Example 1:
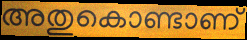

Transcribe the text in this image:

അതുകൊണ്ടാണ്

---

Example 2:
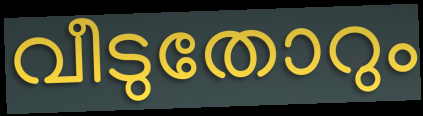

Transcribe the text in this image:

വീടുതോറും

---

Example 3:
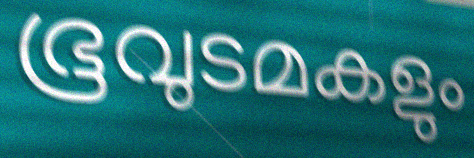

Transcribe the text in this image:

ഭൂവുടമകളും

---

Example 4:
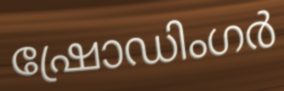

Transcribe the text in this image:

ഷ്രോഡിംഗർ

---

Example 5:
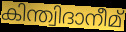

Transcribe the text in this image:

കിന്ത്വിദാനീമ്